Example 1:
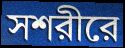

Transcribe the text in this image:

সশরীরে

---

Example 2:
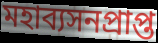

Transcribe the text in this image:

মহাব্যসনপ্রাপ্ত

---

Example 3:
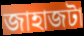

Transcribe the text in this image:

জাহাজটা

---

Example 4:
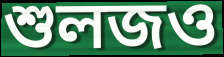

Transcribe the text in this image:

শুলজও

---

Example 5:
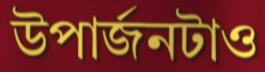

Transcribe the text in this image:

উপার্জনটাও